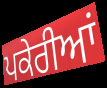
ਪਕੇਰੀਆਂ